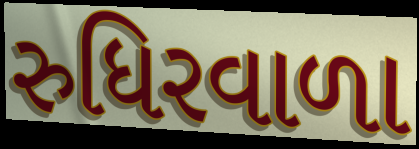
રુધિરવાળા